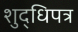
शुद्धिपत्र